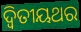
ଦ୍ବିତୀୟଥର